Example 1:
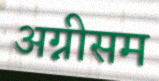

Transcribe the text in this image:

अग्नीसम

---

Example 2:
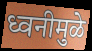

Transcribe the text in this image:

ध्वनीमुळे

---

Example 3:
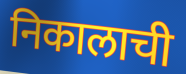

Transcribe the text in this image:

निकालाची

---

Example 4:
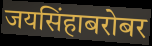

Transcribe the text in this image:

जयसिंहाबरोबर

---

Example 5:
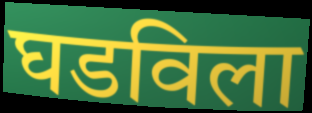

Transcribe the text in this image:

घडविला